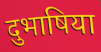
दुभाषिया